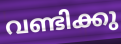
വണ്ടിക്കു